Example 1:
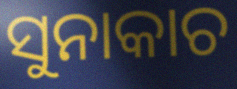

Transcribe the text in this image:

ସୁନାକାଚ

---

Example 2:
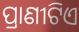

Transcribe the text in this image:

ପ୍ରାଣୀଟିଏ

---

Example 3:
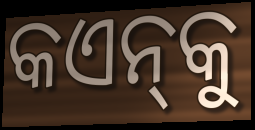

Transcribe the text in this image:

କଏନ୍‌କୁ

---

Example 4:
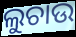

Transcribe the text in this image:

ଲୁଚାଉ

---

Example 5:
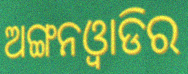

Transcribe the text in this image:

ଅଙ୍ଗନଓ୍ବାଡିର